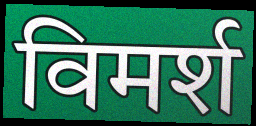
विमर्श